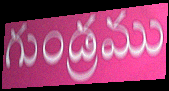
గుండ్రము